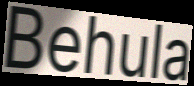
Behula